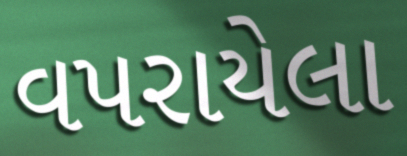
વપરાયેલા